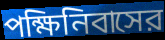
পক্ষিনিবাসের